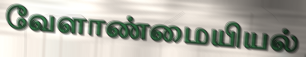
வேளாண்மையியல்